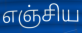
எஞ்சிய